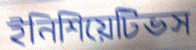
ইনিশিয়েটিভস